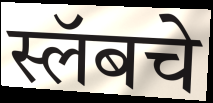
स्लॅबचे